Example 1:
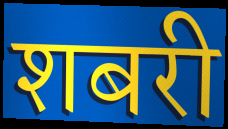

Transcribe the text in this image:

शबरी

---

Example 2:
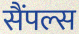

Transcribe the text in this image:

सैंपल्स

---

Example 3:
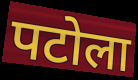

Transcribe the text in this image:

पटोला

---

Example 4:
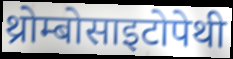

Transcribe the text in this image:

थ्रोम्बोसाइटोपेथी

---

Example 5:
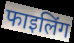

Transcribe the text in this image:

फाइलिंग